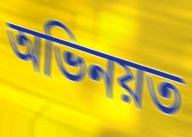
অভিনয়ত